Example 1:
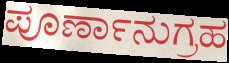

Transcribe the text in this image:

ಪೂರ್ಣಾನುಗ್ರಹ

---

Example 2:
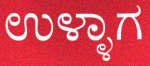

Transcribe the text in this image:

ಉಳ್ಳಾಗ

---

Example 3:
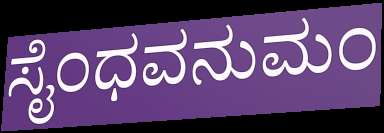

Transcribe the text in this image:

ಸೈಂಧವನುಮಂ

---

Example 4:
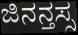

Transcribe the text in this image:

ಜಿನನ್ತಸ್ಸ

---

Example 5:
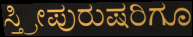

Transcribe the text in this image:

ಸ್ತ್ರೀಪುರುಷರಿಗೂ